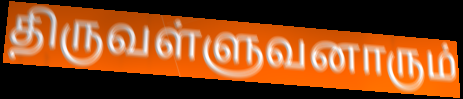
திருவள்ளுவனாரும்